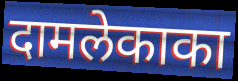
दामलेकाका